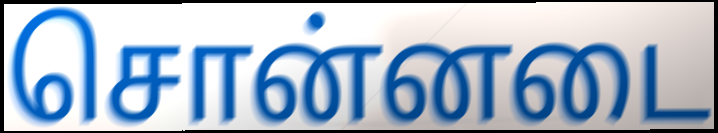
சொன்னடை